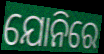
ଯୋନିରେ